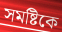
সমষ্টিকে